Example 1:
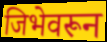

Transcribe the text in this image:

जिभेवरून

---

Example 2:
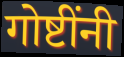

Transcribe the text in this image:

गोष्टींनी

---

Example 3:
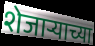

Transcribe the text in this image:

शेजाऱ्याच्या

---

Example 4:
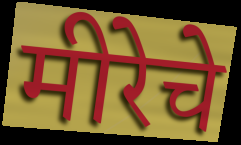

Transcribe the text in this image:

मीरेचे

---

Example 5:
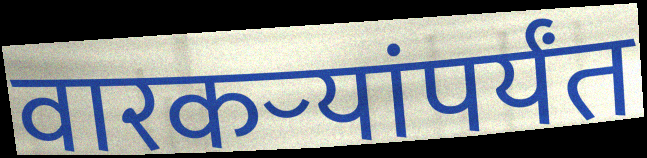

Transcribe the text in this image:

वारकऱ्यांपर्यंत